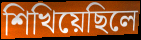
শিখিয়েছিলে